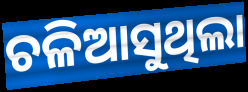
ଚଳିଆସୁଥିଲା